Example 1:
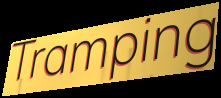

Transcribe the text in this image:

Tramping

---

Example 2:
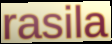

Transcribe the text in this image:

rasila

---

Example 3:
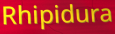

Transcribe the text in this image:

Rhipidura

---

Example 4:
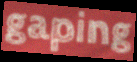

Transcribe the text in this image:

gaping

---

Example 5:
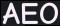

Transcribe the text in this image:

AEO